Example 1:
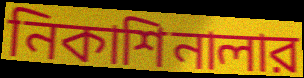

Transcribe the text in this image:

নিকাশিনালার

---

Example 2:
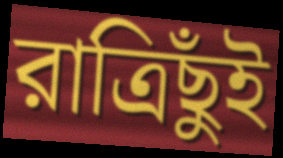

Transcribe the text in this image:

রাত্রিছুঁই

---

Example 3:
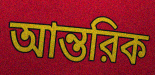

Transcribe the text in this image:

আন্তরিক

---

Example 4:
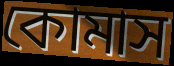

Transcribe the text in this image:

কোমাস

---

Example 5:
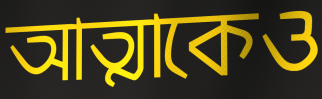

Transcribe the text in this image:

আত্মাকেও